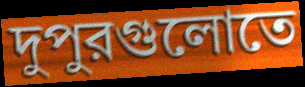
দুপুরগুলোতে